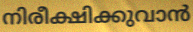
നിരീക്ഷിക്കുവാൻ